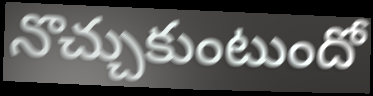
నొచ్చుకుంటుందో